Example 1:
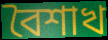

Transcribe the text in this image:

বৈশাখ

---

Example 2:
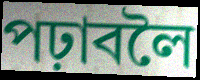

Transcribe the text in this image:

পঢ়াবলৈ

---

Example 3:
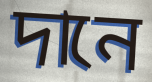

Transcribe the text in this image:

দানে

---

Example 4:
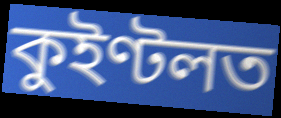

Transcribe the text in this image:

কুইণ্টলত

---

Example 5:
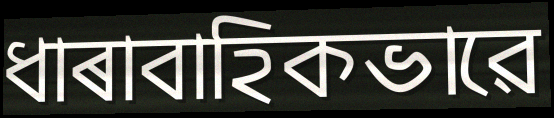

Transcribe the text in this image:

ধাৰাবাহিকভাৱে